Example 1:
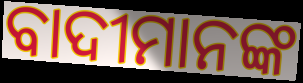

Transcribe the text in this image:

ବାଦୀମାନଙ୍କ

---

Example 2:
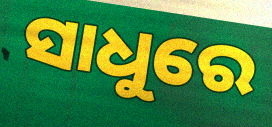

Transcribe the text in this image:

ସାଧୁରେ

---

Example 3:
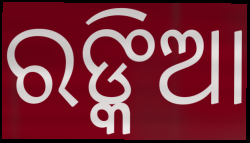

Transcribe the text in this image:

ରଙ୍କିଆ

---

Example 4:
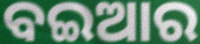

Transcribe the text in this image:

ବଇଆର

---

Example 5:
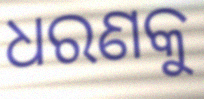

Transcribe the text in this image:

ଧରଣକୁ